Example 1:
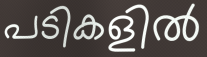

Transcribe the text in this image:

പടികളിൽ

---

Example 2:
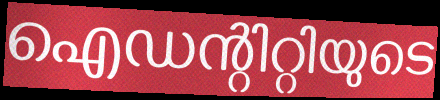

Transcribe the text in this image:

ഐഡന്റിറ്റിയുടെ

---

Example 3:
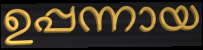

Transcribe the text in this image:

ഉപ്പന്നായ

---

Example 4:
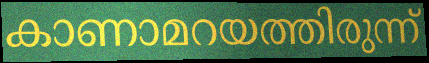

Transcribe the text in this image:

കാണാമറയത്തിരുന്ന്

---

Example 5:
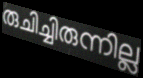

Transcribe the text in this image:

രുചിച്ചിരുന്നില്ല